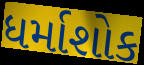
ધર્માશોક